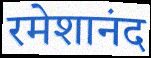
रमेशानंद